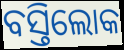
ବସ୍ତିଲୋକ